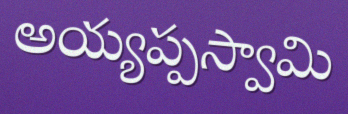
అయ్యప్పస్వామి